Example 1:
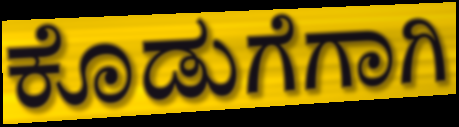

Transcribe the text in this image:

ಕೊಡುಗೆಗಾಗಿ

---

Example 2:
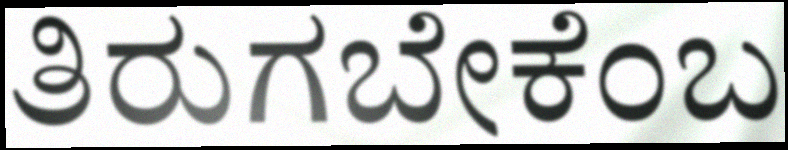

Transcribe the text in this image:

ತಿರುಗಬೇಕೆಂಬ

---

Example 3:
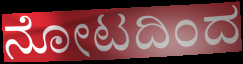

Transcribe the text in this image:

ನೋಟದಿಂದ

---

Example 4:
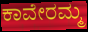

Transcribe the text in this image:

ಕಾವೇರಮ್ಮ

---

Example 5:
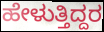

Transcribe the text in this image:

ಹೇಳುತ್ತಿದ್ದರ